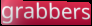
grabbers